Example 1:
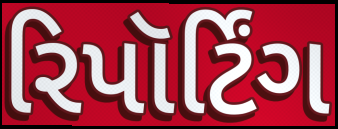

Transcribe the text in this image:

રિપૉર્ટિંગ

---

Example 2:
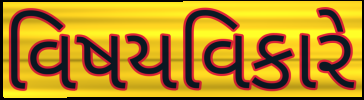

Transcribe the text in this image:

વિષયવિકારે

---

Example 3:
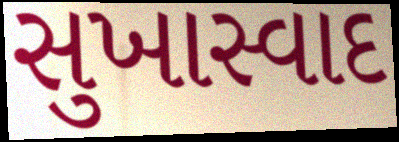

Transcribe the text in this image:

સુખાસ્વાદ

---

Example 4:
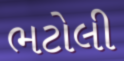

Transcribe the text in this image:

ભટોલી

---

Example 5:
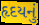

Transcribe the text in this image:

હૃદયનું